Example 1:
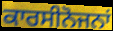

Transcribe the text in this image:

ਕਾਰਸੀਨੋਜਨਾਂ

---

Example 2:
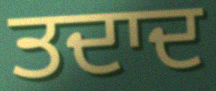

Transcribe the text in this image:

ਤਦਾਦ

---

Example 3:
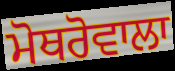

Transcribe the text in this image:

ਮੋਥਰੋਵਾਲਾ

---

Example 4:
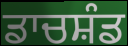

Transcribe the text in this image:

ਡਾਚਸ਼ੰਡ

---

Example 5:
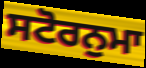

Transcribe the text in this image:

ਸਟੋਰਨੁਮਾ